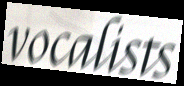
vocalists